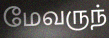
மேவருந்